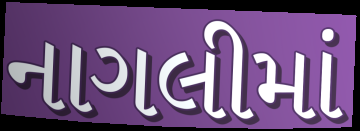
નાગલીમાં